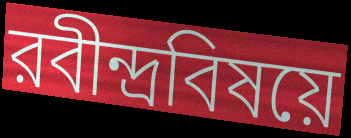
রবীন্দ্রবিষয়ে